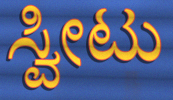
ಸ್ವೀಟು